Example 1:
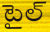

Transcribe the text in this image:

టైల్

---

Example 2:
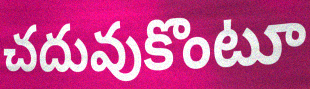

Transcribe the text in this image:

చదువుకొంటూ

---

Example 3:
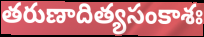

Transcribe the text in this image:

తరుణాదిత్యసంకాశః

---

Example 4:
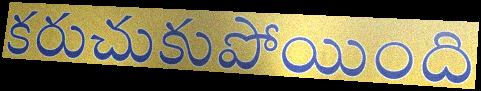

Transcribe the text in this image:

కరుచుకుపోయింది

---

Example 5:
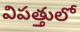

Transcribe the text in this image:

విపత్తులో